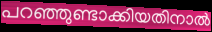
പറഞ്ഞുണ്ടാക്കിയതിനാൽ